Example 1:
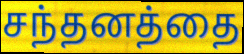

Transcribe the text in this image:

சந்தனத்தை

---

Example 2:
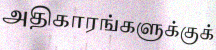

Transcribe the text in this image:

அதிகாரங்களுக்குக்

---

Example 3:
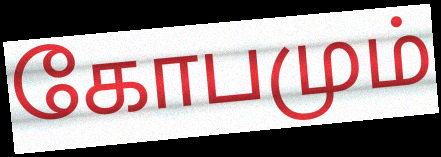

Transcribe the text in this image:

கோபமும்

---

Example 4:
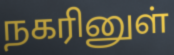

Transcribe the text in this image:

நகரினுள்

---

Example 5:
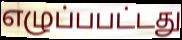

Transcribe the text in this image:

எழுப்பபட்டது